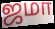
ஜமா